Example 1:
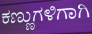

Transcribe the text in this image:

ಕಣ್ಣುಗಳಿಗಾಗಿ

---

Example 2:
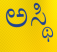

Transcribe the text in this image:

ಅಸ್ಥಿ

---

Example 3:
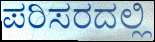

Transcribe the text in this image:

ಪರಿಸರದಲ್ಲಿ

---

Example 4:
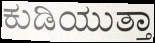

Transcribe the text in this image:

ಕುಡಿಯುತ್ತಾ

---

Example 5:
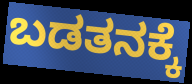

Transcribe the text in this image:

ಬಡತನಕ್ಕೆ